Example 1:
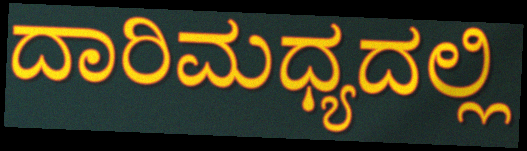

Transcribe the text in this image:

ದಾರಿಮಧ್ಯದಲ್ಲಿ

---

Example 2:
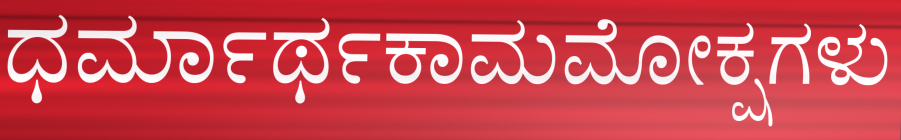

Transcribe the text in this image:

ಧರ್ಮಾರ್ಥಕಾಮಮೋಕ್ಷಗಳು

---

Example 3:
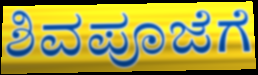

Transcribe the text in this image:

ಶಿವಪೂಜೆಗೆ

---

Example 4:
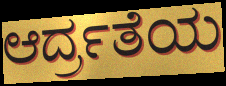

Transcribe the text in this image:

ಆರ್ದ್ರತೆಯ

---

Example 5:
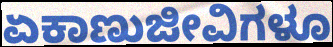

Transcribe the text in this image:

ಏಕಾಣುಜೀವಿಗಳೂ